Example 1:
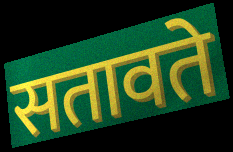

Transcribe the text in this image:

सतावते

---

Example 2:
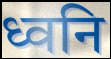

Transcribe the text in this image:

ध्वनि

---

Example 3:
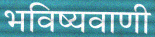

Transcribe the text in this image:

भविष्यवाणी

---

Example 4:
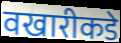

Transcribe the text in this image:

वखारीकडे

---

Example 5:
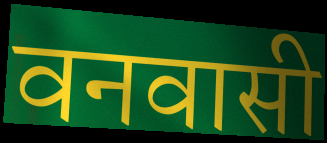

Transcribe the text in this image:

वनवासी